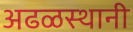
अढळस्थानी